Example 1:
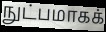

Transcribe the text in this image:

நுட்பமாகக்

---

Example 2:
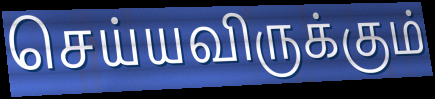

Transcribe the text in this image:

செய்யவிருக்கும்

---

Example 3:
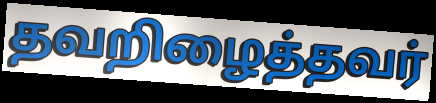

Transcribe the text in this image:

தவறிழைத்தவர்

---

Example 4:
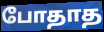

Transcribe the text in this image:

போதாத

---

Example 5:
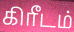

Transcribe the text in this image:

கிரீடம்